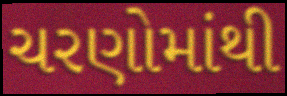
ચરણોમાંથી